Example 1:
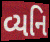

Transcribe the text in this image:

વ્યનિ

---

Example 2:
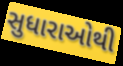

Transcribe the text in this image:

સુધારાઓથી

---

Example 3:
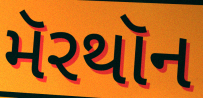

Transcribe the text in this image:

મૅરથૉન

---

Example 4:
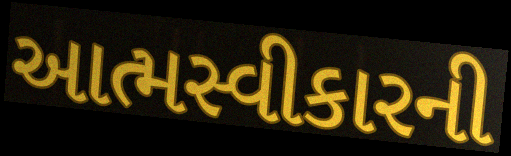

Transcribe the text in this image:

આત્મસ્વીકારની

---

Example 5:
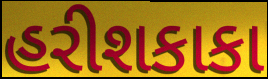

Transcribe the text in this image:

હરીશકાકા